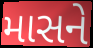
માસને